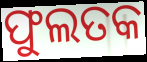
ଫୁଲତକ